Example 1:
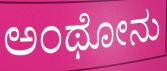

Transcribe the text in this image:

ಅಂಥೋನು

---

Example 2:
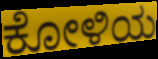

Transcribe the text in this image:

ಕೋಳಿಯ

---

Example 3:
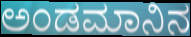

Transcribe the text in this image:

ಅಂಡಮಾನಿನ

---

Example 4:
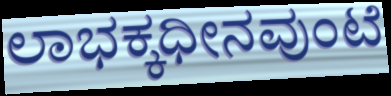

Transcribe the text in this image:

ಲಾಭಕ್ಕಧೀನವುಂಟೆ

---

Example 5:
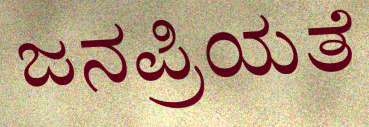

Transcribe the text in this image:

ಜನಪ್ರಿಯತೆ